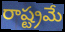
రాష్ట్రమే